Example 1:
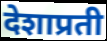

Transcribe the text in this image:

देशाप्रती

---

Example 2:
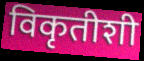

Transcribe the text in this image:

विकृतीशी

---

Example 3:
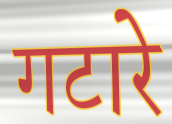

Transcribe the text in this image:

गटारे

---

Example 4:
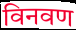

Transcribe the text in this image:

विनवण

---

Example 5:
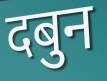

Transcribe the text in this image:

दबुन